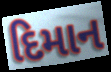
દિમાન